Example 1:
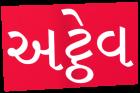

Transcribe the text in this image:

અટ્ઠેવ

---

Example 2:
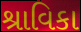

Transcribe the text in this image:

શ્રાવિકા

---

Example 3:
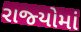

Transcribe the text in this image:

રાજ્‍યોમાં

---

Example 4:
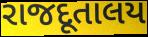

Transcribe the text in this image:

રાજદૂતાલય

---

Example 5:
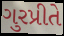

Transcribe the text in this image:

ગુરપ્રીતે